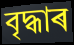
বৃদ্ধাৰ